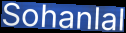
Sohanlal